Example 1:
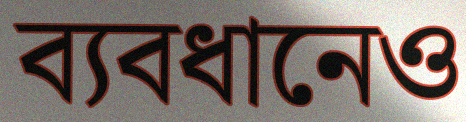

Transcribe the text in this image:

ব্যবধানেও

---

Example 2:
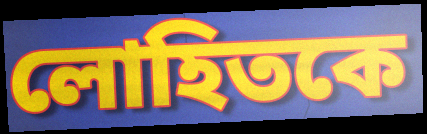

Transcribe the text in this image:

লোহিতকে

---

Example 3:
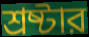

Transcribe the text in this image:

শ্রষ্টার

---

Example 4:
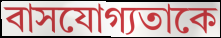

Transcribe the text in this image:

বাসযোগ্যতাকে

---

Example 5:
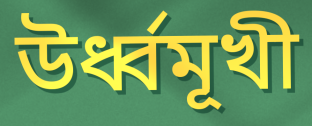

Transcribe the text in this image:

উর্ধ্বমূখী